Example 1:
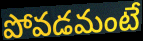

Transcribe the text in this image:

పోవడమంటే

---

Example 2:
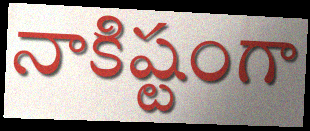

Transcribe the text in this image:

నాకిష్టంగా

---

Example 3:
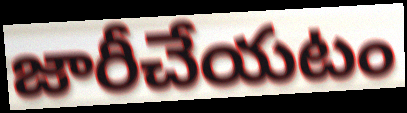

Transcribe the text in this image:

జారీచేయటం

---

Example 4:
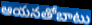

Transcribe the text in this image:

ఆయనతోబాటు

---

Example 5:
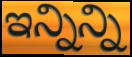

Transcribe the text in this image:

ఇన్నిన్ని